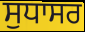
ਸੁਧਾਸਰ